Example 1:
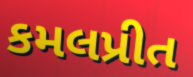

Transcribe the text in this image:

કમલપ્રીત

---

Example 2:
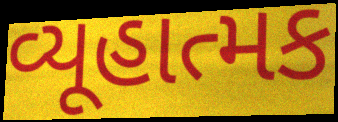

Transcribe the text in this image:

વ્યૂહાત્મક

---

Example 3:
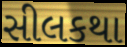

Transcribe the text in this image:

સીલકથા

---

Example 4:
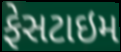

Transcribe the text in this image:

ફેસટાઇમ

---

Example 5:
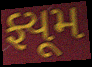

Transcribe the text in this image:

ફ્યૂમ